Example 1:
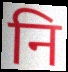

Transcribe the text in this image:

नि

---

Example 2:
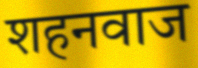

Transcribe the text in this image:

शहनवाज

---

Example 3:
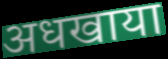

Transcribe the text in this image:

अधखाया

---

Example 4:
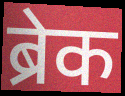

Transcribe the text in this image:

ब्रेक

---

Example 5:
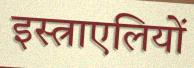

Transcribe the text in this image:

इस्त्राएलियों